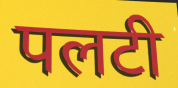
पलटी